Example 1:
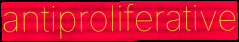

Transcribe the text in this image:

antiproliferative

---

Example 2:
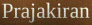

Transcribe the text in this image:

Prajakiran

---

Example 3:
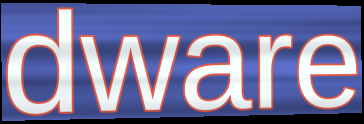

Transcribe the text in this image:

dware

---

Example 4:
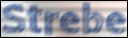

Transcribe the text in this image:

Strebe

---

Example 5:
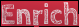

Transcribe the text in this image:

Enrich